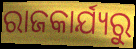
ରାଜକାର୍ଯ୍ୟରୁ